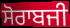
ਸੋਰਾਬਜੀ